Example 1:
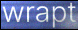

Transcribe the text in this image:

wrapt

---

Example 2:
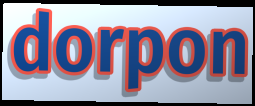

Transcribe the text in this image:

dorpon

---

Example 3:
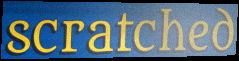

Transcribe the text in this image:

scratched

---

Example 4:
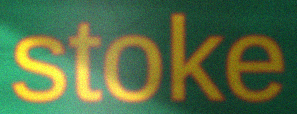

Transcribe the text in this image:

stoke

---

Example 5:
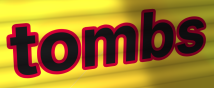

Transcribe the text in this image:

tombs